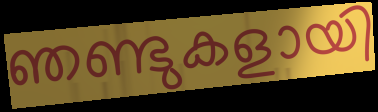
ഞണ്ടുകളായി